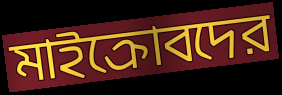
মাইক্রোবদের